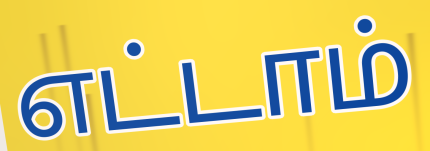
எட்டாம்